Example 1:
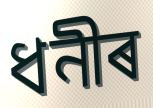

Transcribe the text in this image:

ধনীৰ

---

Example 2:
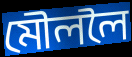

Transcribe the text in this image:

মৌললৈ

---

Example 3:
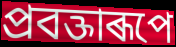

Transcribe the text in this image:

প্ৰবক্তাৰূপে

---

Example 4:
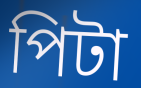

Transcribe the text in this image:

পিটা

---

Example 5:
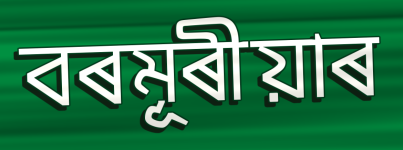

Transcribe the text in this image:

বৰমূৰীয়াৰ